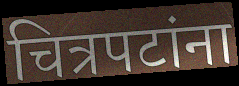
चित्रपटांना